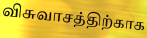
விசுவாசத்திற்காக